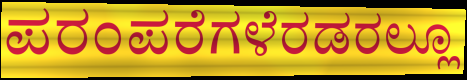
ಪರಂಪರೆಗಳೆರಡರಲ್ಲೂ